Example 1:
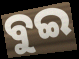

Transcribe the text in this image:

ବୁଇ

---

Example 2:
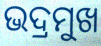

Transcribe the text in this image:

ଭଦ୍ରମୁଖ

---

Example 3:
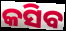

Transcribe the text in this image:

କସିବ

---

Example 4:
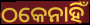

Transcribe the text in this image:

ଠକେନାହିଁ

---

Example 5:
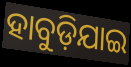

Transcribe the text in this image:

ହାବୁଡ଼ିଯାଇ